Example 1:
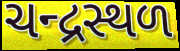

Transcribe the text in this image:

ચન્દ્રસ્થળ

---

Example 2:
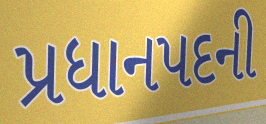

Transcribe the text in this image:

પ્રધાનપદની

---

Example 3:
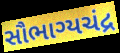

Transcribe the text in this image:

સૌભાગ્યચંદ્ર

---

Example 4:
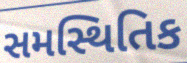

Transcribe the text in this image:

સમસ્થિતિક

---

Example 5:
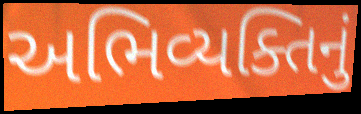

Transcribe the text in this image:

અભિવ્યક્તિનું